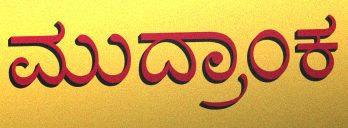
ಮುದ್ರಾಂಕ